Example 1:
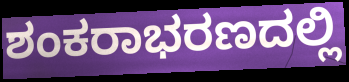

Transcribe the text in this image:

ಶಂಕರಾಭರಣದಲ್ಲಿ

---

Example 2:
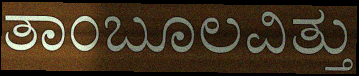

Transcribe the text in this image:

ತಾಂಬೂಲವಿತ್ತು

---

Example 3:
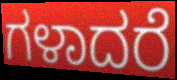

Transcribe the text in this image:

ಗಳಾದರೆ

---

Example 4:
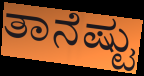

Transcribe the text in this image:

ತಾನೆಷ್ಟು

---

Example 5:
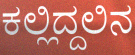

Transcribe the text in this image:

ಕಲ್ಲಿದ್ದಲಿನ